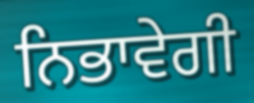
ਨਿਭਾਵੇਗੀ